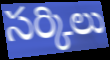
సర్కిలు